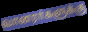
வானரர்களுக்கு